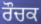
ਰੌਚਕ